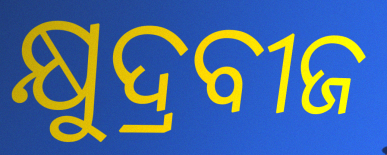
କ୍ଷୁଦ୍ରବୀଜ